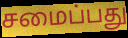
சமைப்பது